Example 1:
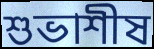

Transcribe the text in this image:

শুভাশীষ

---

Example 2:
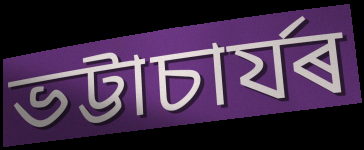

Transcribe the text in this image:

ভট্টাচাৰ্যৰ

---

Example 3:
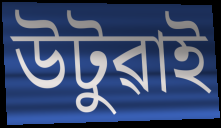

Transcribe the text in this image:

উটুৱাই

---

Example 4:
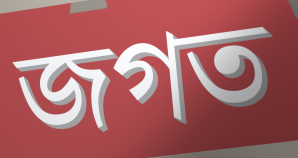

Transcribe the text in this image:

জগত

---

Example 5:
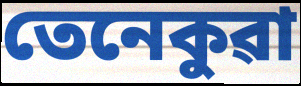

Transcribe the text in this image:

তেনেকুৱা